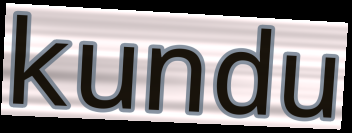
kundu